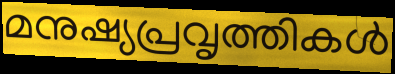
മനുഷ്യപ്രവൃത്തികൾ